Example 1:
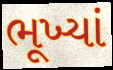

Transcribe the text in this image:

ભૂખ્યાં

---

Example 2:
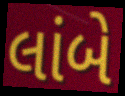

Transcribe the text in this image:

લાંબે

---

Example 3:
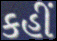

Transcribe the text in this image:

કહીં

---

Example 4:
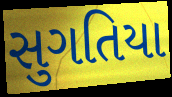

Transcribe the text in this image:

સુગતિયા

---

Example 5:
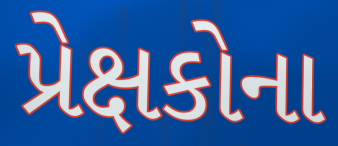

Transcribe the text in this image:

પ્રેક્ષકોના